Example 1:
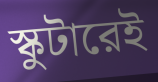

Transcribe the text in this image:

স্কুটারেই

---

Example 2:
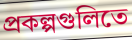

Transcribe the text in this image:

প্রকল্পগুলিতে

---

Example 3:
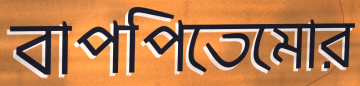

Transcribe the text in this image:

বাপপিতেমোর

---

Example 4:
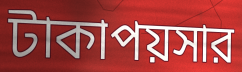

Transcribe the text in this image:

টাকাপয়সার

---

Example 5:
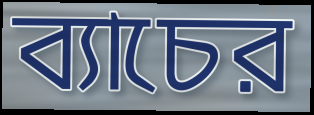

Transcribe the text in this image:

ব্যাচের